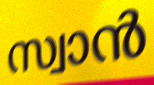
സ്വാൻ